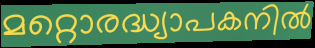
മറ്റൊരദ്ധ്യാപകനിൽ